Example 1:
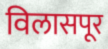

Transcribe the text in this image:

विलासपूर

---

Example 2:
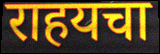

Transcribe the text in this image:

राहयचा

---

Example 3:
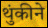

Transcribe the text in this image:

थुंकीने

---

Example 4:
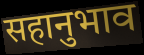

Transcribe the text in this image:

सहानुभाव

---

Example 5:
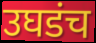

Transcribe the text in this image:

उघडंच